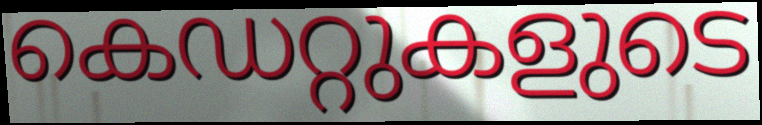
കെഡറ്റുകളുടെ